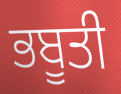
ਭਬੂਤੀ